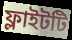
ফ্লাইটটি